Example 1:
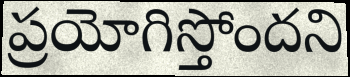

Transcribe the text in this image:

ప్రయోగిస్తోందని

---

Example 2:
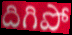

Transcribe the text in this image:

దిగిపో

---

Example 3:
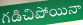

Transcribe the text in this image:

గడిచిపోయినా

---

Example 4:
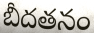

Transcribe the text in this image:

బీదతనం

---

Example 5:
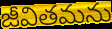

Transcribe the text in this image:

జీవితమను